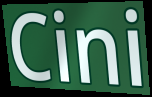
Cini